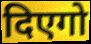
दिएगो